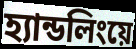
হ্যান্ডলিংয়ে